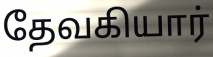
தேவகியார்